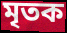
মৃতক